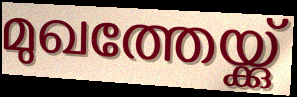
മുഖത്തേയ്ക്കു്